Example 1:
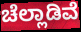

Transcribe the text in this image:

ಚೆಲ್ಲಾಡಿವೆ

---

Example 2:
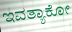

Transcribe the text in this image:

ಇವತ್ಯಾಕೋ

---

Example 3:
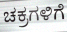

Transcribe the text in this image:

ಚಕ್ರಗಳಿಗೆ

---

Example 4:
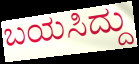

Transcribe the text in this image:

ಬಯಸಿದ್ದು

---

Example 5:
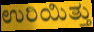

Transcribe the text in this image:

ಉರಿಯಿತ್ತು